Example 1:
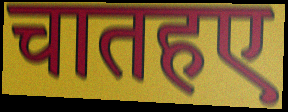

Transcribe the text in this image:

चातहए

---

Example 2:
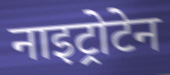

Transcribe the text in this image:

नाइट्रोटेन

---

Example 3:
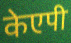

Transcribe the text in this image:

केएपी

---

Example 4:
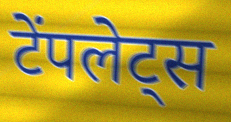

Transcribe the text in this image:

टेंपलेट्स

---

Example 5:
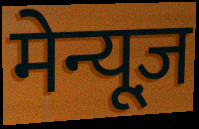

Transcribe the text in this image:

मेन्यूज़